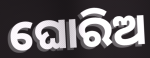
ଘୋରିଅ